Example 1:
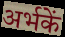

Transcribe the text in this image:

अर्भकें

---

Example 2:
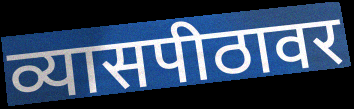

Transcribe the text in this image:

व्यासपीठावर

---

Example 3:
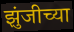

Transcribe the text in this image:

झुंजीच्या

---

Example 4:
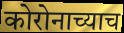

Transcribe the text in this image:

कोरोनाच्याच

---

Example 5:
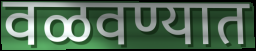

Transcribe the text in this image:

वळवण्यात